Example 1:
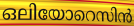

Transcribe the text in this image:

ഒലിയോറെസിൻ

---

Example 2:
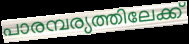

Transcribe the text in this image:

പാരമ്പര്യത്തിലേക്ക്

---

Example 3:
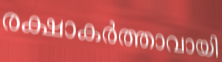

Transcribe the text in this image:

രക്ഷാകർത്താവായി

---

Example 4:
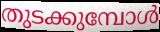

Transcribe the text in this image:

തുടക്കുമ്പോൾ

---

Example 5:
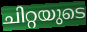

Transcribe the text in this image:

ചിറ്റയുടെ